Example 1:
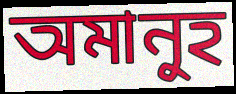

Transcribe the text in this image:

অমানুহ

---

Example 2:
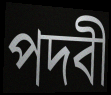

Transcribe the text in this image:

পদবী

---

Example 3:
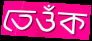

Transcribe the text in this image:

তেওঁক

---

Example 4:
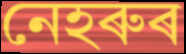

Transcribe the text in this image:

নেহৰুৰ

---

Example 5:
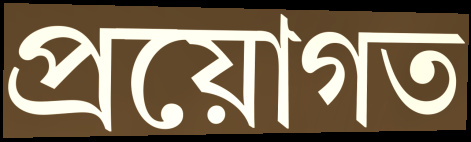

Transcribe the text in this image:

প্ৰয়োগত